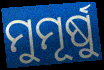
ମୁମୂର୍ଷୁ